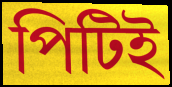
পিটিই